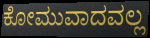
ಕೋಮುವಾದವಲ್ಲ